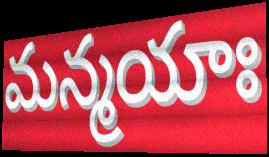
మన్మయాః